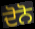
ਦੋਨੋ